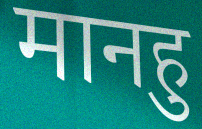
मानहु